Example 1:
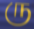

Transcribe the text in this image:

ரு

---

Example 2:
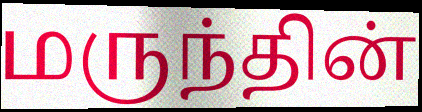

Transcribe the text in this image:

மருந்தின்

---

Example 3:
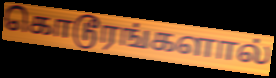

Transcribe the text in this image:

கொடூரங்களால்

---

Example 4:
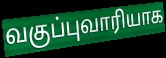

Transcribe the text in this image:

வகுப்புவாரியாக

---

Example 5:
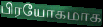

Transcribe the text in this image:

பிரயோகமாக